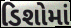
ડિશોમાં